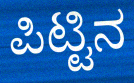
ಪಿಟ್ಟಿನ